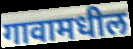
गावामधील